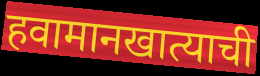
हवामानखात्याची